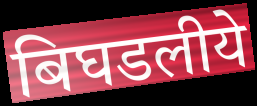
बिघडलीये